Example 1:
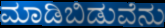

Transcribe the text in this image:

ಮಾಡಿಬಿಡುವೆನು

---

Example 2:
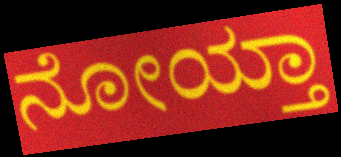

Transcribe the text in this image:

ನೋಯ್ತಾ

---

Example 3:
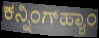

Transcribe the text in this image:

ಕನ್ನಿಂಗ್‌ಹ್ಯಾಂ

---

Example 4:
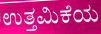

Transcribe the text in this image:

ಉತ್ತಮಿಕೆಯ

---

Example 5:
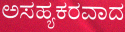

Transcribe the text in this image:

ಅಸಹ್ಯಕರವಾದ